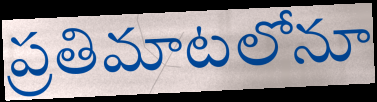
ప్రతిమాటలోనూ